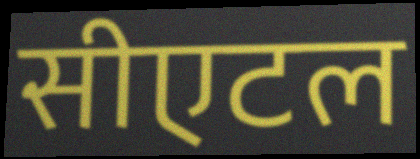
सीएटल